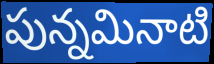
పున్నమినాటి